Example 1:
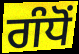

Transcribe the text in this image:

ਗੰਧੋਂ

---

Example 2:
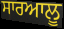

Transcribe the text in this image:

ਸਾਰਆਲੂ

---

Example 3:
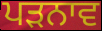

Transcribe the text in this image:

ਪੜਨਾਵ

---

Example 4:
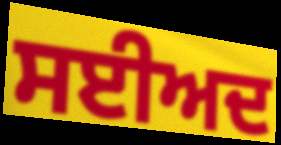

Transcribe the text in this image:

ਸਈਅਦ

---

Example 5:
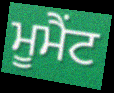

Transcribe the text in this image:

ਮੂਮੈਂਟ